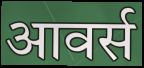
आवर्स